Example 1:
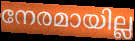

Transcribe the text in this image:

നേരമായില്ല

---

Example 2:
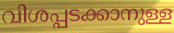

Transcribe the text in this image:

വിശപ്പടക്കാനുള്ള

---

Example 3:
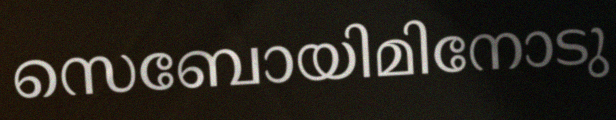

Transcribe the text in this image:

സെബോയിമിനോടു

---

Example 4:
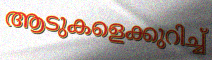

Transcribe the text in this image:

ആടുകളെക്കുറിച്ച്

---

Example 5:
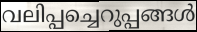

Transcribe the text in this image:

വലിപ്പച്ചെറുപ്പങ്ങൾ